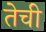
तेची